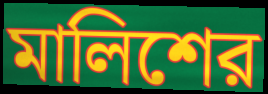
মালিশের